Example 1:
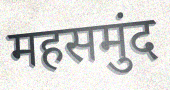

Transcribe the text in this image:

महसमुंद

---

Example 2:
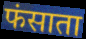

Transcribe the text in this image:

फंसाता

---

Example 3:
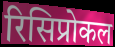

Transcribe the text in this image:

रिसिप्रोकल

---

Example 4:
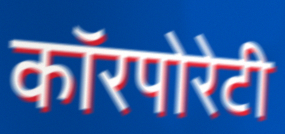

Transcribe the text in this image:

कॉरपोरेटी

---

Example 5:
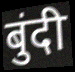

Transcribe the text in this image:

बुंदी